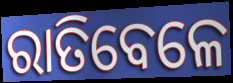
ରାତିବେଳେ